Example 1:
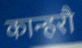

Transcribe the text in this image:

कान्हरौ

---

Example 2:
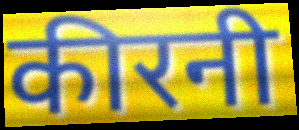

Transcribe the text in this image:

कीरनी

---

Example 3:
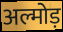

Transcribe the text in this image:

अल्मोड़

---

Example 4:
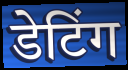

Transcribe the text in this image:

डेटिंग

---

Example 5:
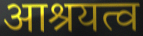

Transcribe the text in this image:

आश्रयत्व